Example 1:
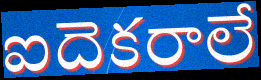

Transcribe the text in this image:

ఐదెకరాలే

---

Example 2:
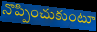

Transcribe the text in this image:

నొప్పించుకుంటూ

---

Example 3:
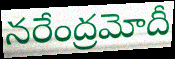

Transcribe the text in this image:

నరేంద్రమోదీ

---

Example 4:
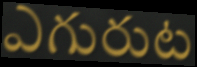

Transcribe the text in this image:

ఎగురుట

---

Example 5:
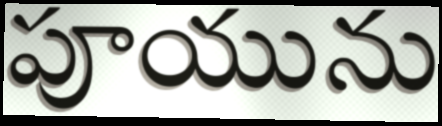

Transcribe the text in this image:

పూయును